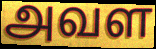
அவள